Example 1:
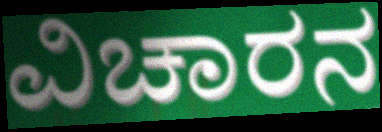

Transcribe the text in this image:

ವಿಚಾರನ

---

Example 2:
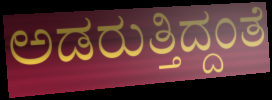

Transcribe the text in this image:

ಅಡರುತ್ತಿದ್ದಂತೆ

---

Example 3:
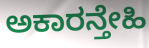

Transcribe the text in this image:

ಅಕಾರನ್ತೇಹಿ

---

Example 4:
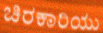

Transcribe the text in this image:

ಚಿರಕಾರಿಯು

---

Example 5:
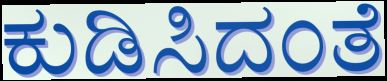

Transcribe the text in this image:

ಕುಡಿಸಿದಂತೆ